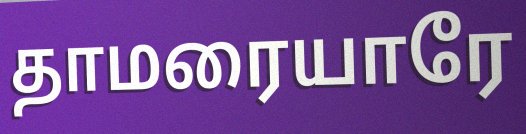
தாமரையாரே